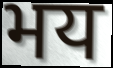
भय